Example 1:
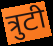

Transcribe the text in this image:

त्रुटी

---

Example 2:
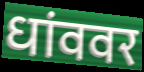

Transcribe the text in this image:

धांववर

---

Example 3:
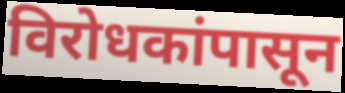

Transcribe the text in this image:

विरोधकांपासून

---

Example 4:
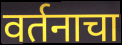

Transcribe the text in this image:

वर्तनाचा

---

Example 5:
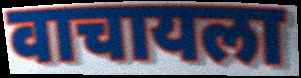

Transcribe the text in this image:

वाचायला